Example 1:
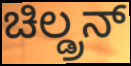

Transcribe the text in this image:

ಚಿಲ್ಡ್ರನ್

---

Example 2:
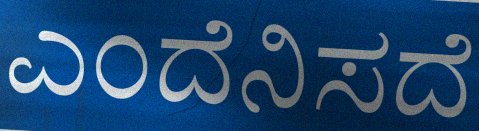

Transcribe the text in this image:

ಎಂದೆನಿಸದೆ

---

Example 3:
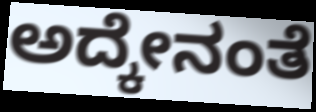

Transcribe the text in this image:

ಅದ್ಕೇನಂತೆ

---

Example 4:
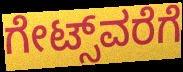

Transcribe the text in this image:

ಗೇಟ್ಸ್‌ವರೆಗೆ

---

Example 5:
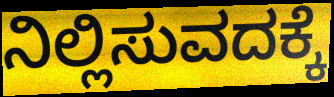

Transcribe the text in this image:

ನಿಲ್ಲಿಸುವದಕ್ಕೆ